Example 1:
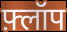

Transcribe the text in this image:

फ़्लॉप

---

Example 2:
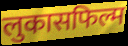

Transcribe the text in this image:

लुकासफिल्म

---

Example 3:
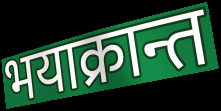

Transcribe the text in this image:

भयाक्रान्त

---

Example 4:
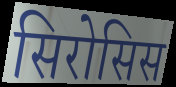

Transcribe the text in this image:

सिरोसिस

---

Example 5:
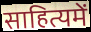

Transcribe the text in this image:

साहित्यमें